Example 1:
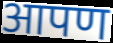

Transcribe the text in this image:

आपण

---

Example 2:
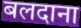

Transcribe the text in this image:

बलदाना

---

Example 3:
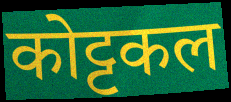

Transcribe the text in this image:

कोट्टकल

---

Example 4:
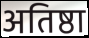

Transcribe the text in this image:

अतिष्ठा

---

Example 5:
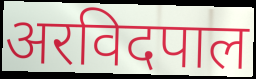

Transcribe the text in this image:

अरविदपाल